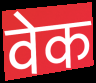
वेक